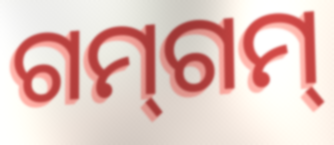
ଗମ୍‌ଗମ୍